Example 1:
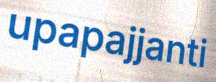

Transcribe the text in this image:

upapajjanti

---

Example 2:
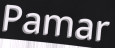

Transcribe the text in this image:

Pamar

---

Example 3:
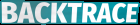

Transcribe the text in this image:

BACKTRACE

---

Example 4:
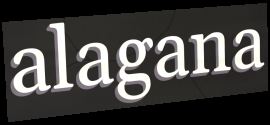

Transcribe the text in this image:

alagana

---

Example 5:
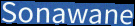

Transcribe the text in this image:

Sonawane